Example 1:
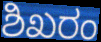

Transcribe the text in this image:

ಶಿಖರಂ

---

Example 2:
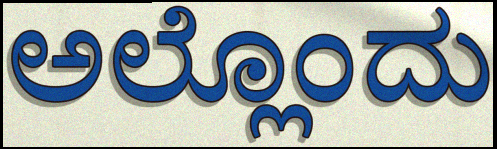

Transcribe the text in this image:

ಅಲ್ಲೊಂದು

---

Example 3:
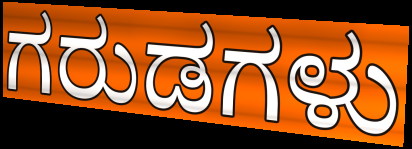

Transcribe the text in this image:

ಗರುಡಗಳು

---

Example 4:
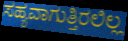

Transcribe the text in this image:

ಸಹ್ಯವಾಗುತ್ತಿರಲಿಲ್ಲ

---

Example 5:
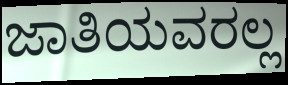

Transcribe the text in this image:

ಜಾತಿಯವರಲ್ಲ